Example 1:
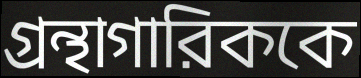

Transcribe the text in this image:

গ্রন্থাগারিককে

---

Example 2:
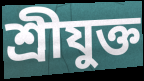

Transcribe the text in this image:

শ্রীযুক্ত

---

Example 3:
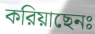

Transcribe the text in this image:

করিয়াছেনঃ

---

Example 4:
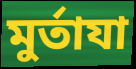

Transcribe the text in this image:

মুর্তাযা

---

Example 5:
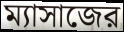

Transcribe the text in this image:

ম্যাসাজের